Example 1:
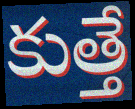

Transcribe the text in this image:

కుత్తే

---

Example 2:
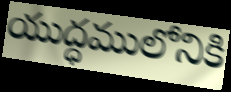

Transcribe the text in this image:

యుద్ధములోనికి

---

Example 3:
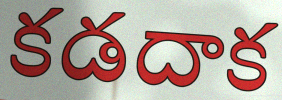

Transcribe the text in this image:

కడదాక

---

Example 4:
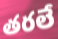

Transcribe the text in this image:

తరలే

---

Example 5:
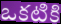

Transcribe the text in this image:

ఒకటికి